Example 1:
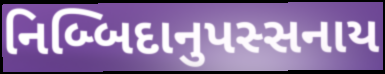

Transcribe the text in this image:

નિબ્બિદાનુપસ્સનાય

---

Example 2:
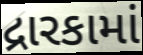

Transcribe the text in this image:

દ્રારકામાં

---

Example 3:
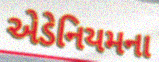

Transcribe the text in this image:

એડેનિયમના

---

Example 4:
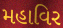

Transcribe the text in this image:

મહાવિર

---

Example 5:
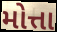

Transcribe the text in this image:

મોત્તા